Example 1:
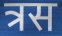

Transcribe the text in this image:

त्रस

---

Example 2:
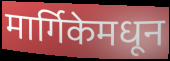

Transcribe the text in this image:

मार्गिकेमधून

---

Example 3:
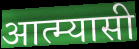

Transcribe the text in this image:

आत्म्यासी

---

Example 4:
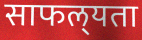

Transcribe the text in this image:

साफल्यता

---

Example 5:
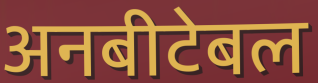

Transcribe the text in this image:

अनबीटेबल